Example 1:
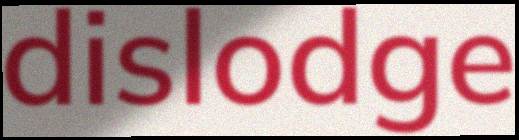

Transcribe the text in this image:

dislodge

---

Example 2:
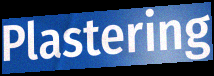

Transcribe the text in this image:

Plastering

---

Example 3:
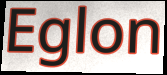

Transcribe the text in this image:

Eglon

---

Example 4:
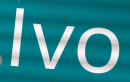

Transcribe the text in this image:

Ivo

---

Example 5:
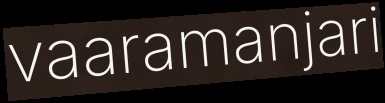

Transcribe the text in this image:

vaaramanjari